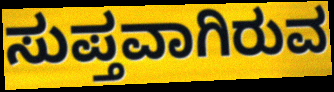
ಸುಪ್ತವಾಗಿರುವ